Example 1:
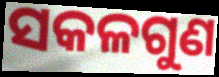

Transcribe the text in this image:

ସକଳଗୁଣ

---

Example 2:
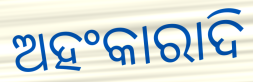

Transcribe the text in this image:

ଅହଂକାରାଦି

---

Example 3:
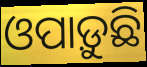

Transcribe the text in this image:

ଓପାଡ଼ୁଛି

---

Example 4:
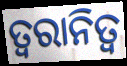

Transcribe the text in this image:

ତ୍ୱରାନିତ୍ଵ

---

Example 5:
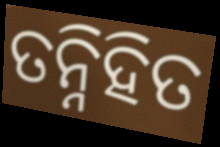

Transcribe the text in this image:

ତନ୍ନିହିତ